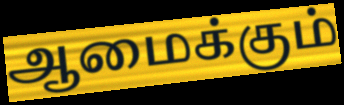
ஆமைக்கும்